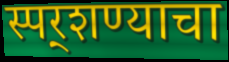
स्पर्शण्याचा